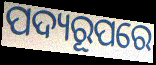
ପଦ୍ୟରୂପରେ